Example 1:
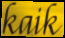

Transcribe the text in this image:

kaik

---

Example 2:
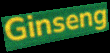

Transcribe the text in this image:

Ginseng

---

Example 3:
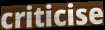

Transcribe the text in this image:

criticise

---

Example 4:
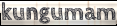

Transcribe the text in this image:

kungumam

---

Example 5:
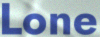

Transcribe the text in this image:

Lone